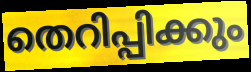
തെറിപ്പിക്കും